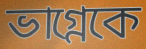
ভাগ্নেকে